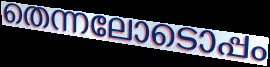
തെന്നലോടൊപ്പം